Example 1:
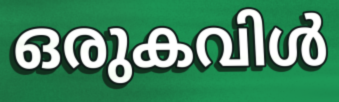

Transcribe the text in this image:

ഒരുകവിൾ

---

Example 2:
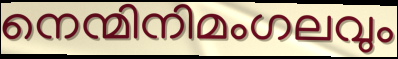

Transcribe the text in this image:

നെന്മിനിമംഗലവും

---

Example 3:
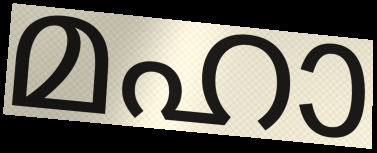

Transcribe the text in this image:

മഹാ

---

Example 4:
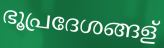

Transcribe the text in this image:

ഭൂപ്രദേശങ്ങള്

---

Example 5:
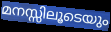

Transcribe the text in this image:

മനസ്സിലൂടെയും